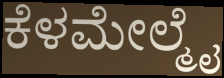
ಕೆಳಮೇಲ್ಮೈ